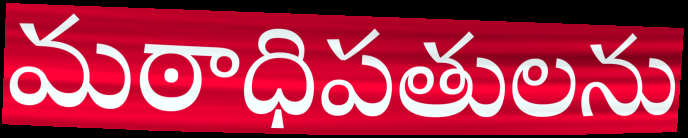
మఠాధిపతులను